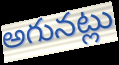
అగునట్లు